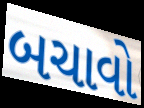
બચાવો